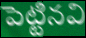
పెట్టినవి